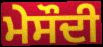
ਮੇਸੌਦੀ